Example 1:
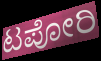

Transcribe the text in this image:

ಟಪೋರಿ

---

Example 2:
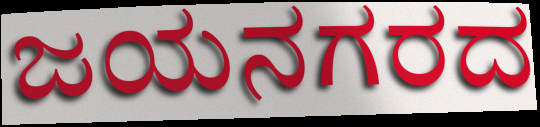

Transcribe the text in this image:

ಜಯನಗರದ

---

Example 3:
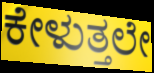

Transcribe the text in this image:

ಕೇಳುತ್ತಲೇ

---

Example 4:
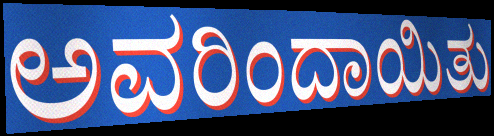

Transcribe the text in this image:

ಅವರಿಂದಾಯಿತು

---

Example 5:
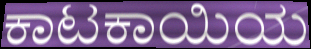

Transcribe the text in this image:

ಕಾಟಕಾಯಿಯ